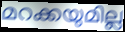
മറക്കയുമില്ല